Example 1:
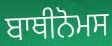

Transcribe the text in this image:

ਬਾਥੀਨੋਮਸ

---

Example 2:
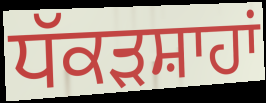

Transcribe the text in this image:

ਧੱਕੜਸ਼ਾਹਾਂ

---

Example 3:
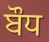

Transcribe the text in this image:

ਬੌਧ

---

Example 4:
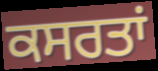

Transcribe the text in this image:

ਕਸਰਤਾਂ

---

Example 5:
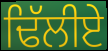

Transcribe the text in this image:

ਢਿੱਲੀਏ